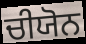
ਚੀਯੋਨ